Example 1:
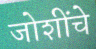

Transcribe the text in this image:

जोशींचे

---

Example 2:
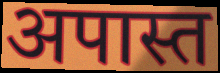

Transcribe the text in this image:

अपास्त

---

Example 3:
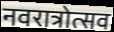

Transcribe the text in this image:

नवरात्रोत्सव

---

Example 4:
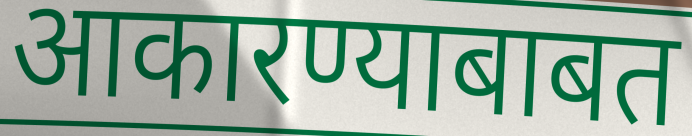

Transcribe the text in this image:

आकारण्याबाबत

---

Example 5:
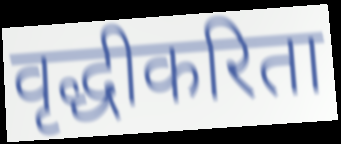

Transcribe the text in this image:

वृद्धीकरिता